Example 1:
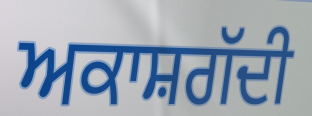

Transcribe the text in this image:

ਅਕਾਸ਼ਗੱਦੀ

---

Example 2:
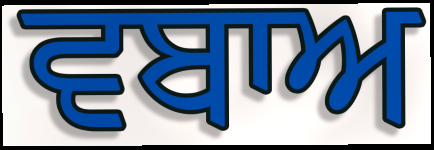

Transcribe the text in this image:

ਵਬਾਅ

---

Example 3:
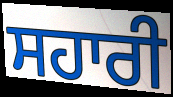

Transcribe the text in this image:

ਸਹਾਰੀ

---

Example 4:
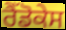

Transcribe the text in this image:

ਰੈੱਡੋਕੇਸ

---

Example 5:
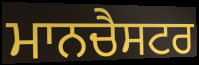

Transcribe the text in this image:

ਮਾਨਚੈਸਟਰ